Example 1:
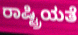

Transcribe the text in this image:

ರಾಷ್ಟ್ರಿಯತೆ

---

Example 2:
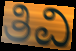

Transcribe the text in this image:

ತಿವಿ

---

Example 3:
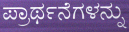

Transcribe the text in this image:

ಪ್ರಾರ್ಥನೆಗಳನ್ನು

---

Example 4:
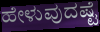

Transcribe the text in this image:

ಹೇಳುವುದಷ್ಟೆ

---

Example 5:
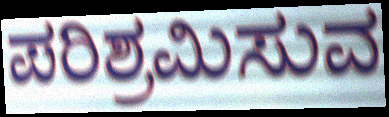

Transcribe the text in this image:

ಪರಿಶ್ರಮಿಸುವ